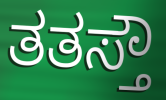
ತತಸ್ತೌ